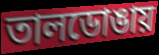
তালডোঙায়